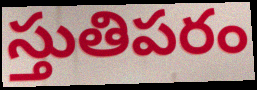
స్తుతిపరం